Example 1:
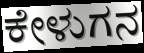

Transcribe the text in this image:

ಕೇಳುಗನ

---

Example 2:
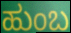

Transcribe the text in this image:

ಹುಂಬ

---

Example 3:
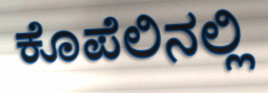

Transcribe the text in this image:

ಕೊಪೆಲಿನಲ್ಲಿ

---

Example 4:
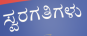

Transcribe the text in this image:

ಸ್ವರಗತಿಗಳು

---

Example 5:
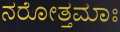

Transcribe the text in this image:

ನರೋತ್ತಮಾಃ